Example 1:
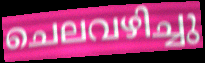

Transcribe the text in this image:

ചെലവഴിച്ചു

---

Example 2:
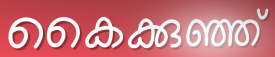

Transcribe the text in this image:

കൈക്കുഞ്ഞ്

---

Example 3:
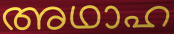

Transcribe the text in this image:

അഥാഹ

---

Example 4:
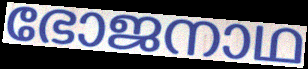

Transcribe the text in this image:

ഭോജനാഥ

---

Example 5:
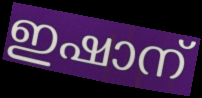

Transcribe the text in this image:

ഇഷാന്